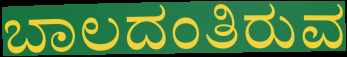
ಬಾಲದಂತಿರುವ